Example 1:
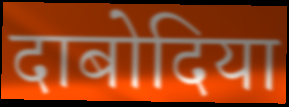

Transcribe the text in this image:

दाबोदिया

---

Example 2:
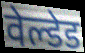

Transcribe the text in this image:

वेल्डेड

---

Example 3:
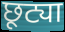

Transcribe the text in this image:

छूट्या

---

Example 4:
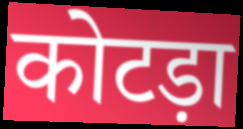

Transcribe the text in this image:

कोटड़ा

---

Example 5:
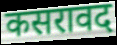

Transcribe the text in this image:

कसरावद